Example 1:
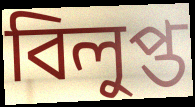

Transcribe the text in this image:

বিলুপ্ত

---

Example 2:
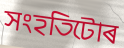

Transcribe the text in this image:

সংহতিটোৰ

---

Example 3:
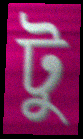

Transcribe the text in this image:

টু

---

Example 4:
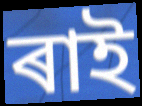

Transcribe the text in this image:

ৰাই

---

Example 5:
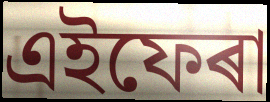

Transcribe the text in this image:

এইফেৰা